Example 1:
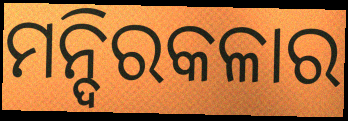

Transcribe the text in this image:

ମନ୍ଦିରକଳାର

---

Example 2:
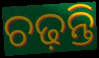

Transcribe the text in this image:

ଚଢ଼ନ୍ତି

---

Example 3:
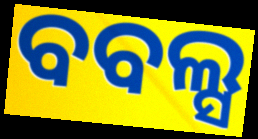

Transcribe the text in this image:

ବବଲ୍ସ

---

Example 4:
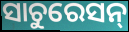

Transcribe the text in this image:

ସାଚୁରେସନ୍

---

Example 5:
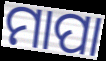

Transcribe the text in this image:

ମାପା